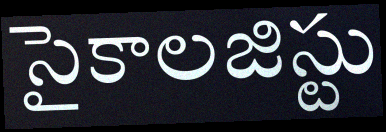
సైకాలజిస్టు